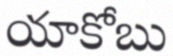
యాకోబు